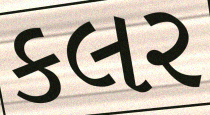
કલર